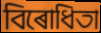
বিৰোধিতা